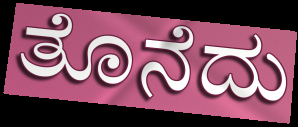
ತೊನೆದು